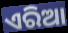
ଏରିଆ